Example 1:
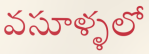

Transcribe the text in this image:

వసూళ్ళలో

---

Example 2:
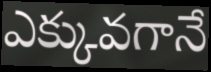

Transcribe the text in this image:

ఎక్కువగానే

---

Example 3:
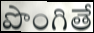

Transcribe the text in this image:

పొంగితే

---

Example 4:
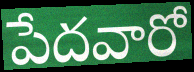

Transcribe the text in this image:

పేదవారో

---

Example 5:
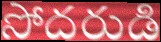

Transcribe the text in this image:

సోదరుడి